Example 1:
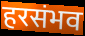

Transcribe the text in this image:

हरसंभव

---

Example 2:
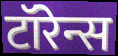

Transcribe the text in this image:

टॉरेन्स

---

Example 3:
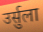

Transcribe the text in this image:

उर्सुला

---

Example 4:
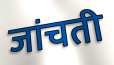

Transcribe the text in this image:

जांचती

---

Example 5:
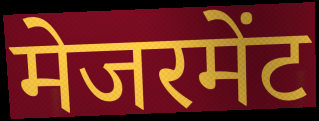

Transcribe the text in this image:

मेजरमेंट